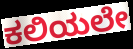
ಕಲಿಯಲೇ